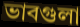
ভাবগুলা